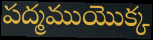
పద్మముయొక్క